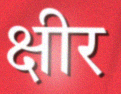
क्षीर